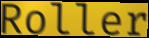
Roller